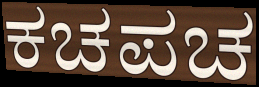
ಕಚಪಚ